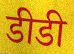
डीडी